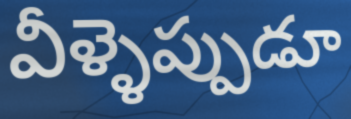
వీళ్ళెప్పుడూ